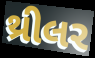
થ્રીલર